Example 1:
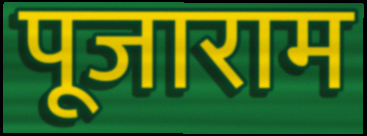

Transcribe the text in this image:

पूजाराम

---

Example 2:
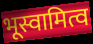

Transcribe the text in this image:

भूस्वामित्व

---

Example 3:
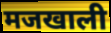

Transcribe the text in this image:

मजखाली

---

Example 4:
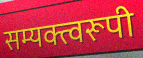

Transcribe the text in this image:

सम्यक्त्वरूपी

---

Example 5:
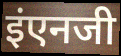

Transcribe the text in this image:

इंएनजी